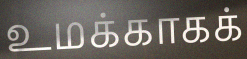
உமக்காகக்